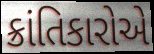
ક્રાંતિકારોએ